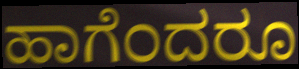
ಹಾಗೆಂದರೂ